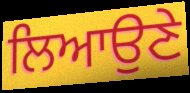
ਲਿਆਉਣੇ